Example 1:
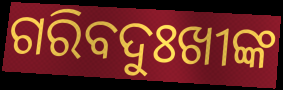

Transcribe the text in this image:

ଗରିବଦୁଃଖୀଙ୍କ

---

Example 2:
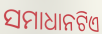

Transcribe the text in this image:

ସମାଧାନଟିଏ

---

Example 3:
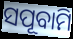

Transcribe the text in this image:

ସପୂବାମି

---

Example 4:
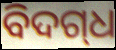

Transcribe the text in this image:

ବିଦଗ୍‍ଧ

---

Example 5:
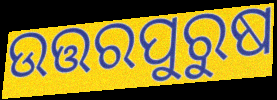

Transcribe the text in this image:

ଉତ୍ତରପୁରୁଷ